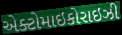
એક્ટોમાઇકોરાઇઝી